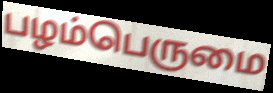
பழம்பெருமை